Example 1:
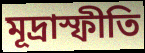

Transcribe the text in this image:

মূদ্রাস্ফীতি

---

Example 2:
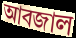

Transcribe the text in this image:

আবজাল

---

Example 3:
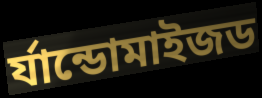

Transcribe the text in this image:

র্যান্ডোমাইজড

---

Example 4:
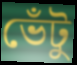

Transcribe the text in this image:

ভেঁটু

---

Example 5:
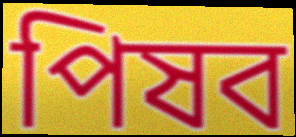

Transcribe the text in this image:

পিষব